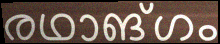
രഥാങ്ഗം